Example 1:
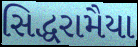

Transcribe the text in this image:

સિદ્ધરામૈયા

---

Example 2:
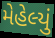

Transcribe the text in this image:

મેહેલ્યું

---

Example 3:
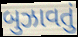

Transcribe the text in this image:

બુઝાવતું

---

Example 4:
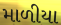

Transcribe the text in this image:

માળીયા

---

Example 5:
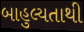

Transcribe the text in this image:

બાહુલ્યતાથી